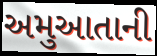
અમુઆતાની